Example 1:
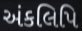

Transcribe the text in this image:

અંકલિપિ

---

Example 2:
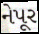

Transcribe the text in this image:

નેપૂર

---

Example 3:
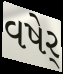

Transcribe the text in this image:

વષેર્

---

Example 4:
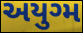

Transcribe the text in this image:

અયુગ્મ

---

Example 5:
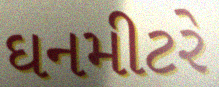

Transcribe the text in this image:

ઘનમીટરે